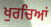
ਖੁਰਚਿਆਂ